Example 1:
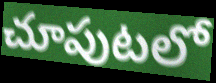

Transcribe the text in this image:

చూపుటలో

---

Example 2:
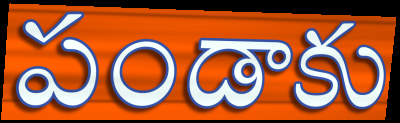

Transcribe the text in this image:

పండాకు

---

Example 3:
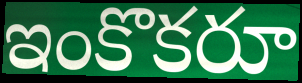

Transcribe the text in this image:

ఇంకొకరూ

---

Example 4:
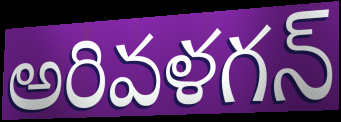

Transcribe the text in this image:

అరివళగన్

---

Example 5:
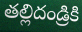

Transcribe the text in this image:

తల్లిదండ్రికి